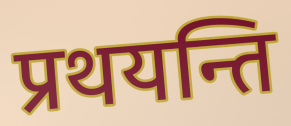
प्रथयन्ति